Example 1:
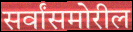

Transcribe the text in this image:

सर्वांसमोरील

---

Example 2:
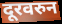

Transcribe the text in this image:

दूरवरुन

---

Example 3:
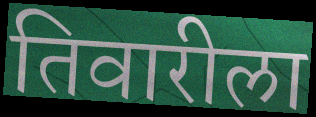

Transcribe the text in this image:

तिवारीला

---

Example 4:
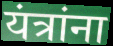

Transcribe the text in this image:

यंत्रांना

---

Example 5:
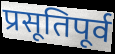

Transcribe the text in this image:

प्रसूतिपूर्व